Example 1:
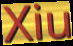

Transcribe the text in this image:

Xiu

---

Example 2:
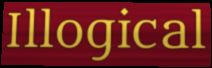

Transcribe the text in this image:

Illogical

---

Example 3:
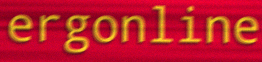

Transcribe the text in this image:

ergonline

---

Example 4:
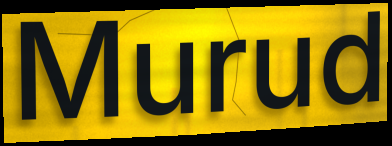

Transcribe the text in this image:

Murud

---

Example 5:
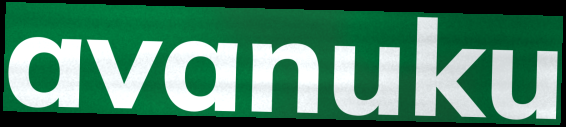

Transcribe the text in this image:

avanuku